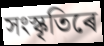
সংস্কৃতিৰে